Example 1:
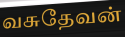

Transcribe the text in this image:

வசுதேவன்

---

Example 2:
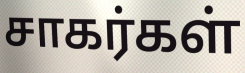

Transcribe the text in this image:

சாகர்கள்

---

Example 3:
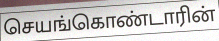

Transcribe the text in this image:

செயங்கொண்டாரின்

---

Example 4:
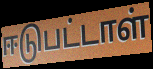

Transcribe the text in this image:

ஈடுபட்டாள்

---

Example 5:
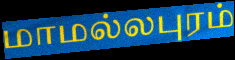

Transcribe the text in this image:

மாமல்லபுரம்